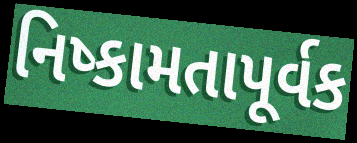
નિષ્કામતાપૂર્વક